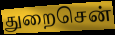
துறைசென்